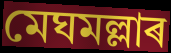
মেঘমল্লাৰ